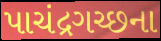
પાચંદ્રગચ્છના